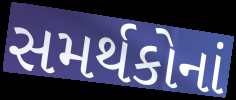
સમર્થકોનાં